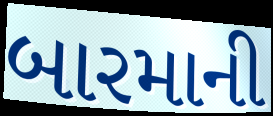
બારમાની